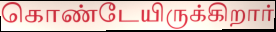
கொண்டேயிருக்கிறார்